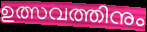
ഉത്സവത്തിനും